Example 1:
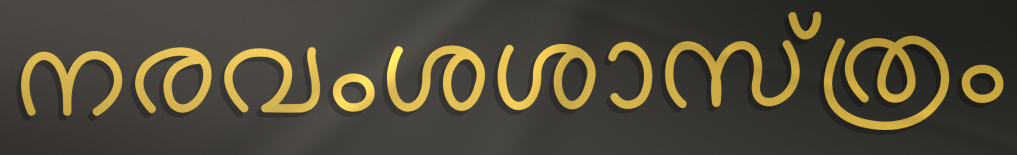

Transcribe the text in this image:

നരവംശശാസ്‌ത്രം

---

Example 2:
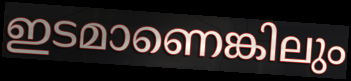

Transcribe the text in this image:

ഇടമാണെങ്കിലും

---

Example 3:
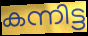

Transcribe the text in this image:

കന്നിട്ട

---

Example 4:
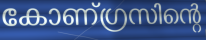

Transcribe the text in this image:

കോണ്ഗ്രസിന്റെ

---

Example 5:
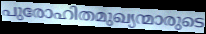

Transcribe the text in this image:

പുരോഹിതമുഖ്യന്മാരുടെ